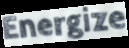
Energize